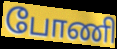
போணி